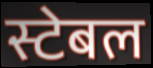
स्‍टेबल